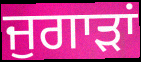
ਜੁਗਾੜਾਂ